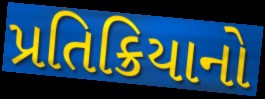
પ્રતિક્રિયાનો